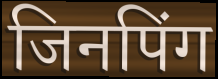
जिनपिंग